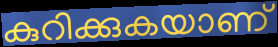
കുറിക്കുകയാണ്